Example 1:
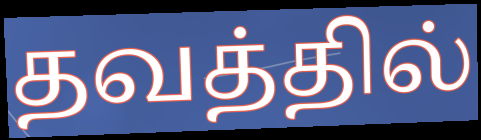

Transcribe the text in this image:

தவத்தில்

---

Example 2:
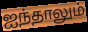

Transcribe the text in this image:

ஐந்தாலும்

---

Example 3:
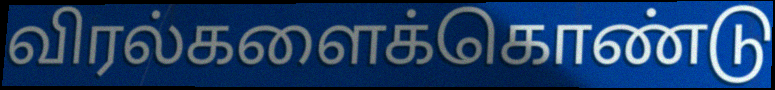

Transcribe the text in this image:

விரல்களைக்கொண்டு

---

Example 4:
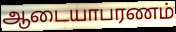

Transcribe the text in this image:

ஆடையாபரணம்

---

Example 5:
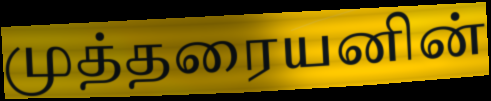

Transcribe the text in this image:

முத்தரையனின்